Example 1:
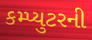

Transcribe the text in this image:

કમ્પ્યુટરની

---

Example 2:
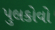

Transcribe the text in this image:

પુલકોવો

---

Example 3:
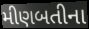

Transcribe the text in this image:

મીણબતીના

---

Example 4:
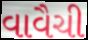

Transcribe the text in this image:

વાવૈચી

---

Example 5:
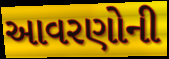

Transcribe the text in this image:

આવરણોની